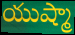
యుష్మా